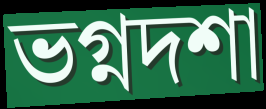
ভগ্নদশা